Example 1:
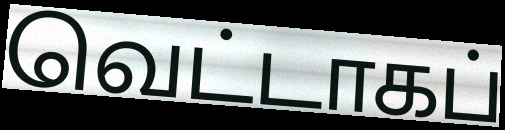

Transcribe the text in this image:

வெட்டாகப்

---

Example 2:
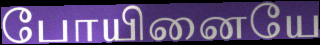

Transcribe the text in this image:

போயினையே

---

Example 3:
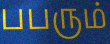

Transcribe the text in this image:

பபரும்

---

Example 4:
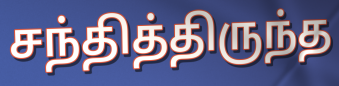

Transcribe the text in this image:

சந்தித்திருந்த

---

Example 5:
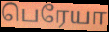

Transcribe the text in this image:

பெரேயா